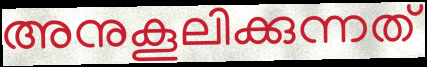
അനുകൂലിക്കുന്നത്